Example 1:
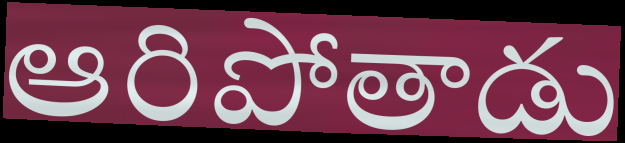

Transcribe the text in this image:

ఆరిపోతాడు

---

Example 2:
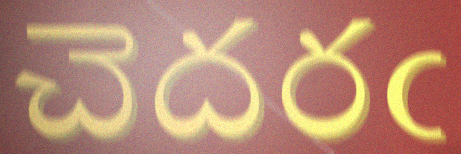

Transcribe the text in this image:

చెదరఁ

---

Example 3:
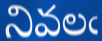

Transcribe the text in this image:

నివలఁ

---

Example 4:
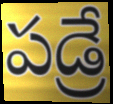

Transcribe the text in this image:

పడ్రే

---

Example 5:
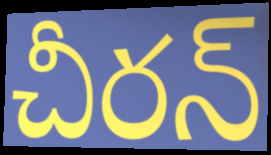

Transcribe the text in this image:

చీరన్